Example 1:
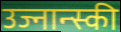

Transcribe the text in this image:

उज्नान्स्की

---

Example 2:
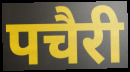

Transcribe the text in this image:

पचैरी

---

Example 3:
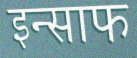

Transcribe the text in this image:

इन्साफ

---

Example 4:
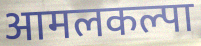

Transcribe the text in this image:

आमलकल्पा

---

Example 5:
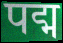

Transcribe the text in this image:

पद्म